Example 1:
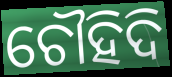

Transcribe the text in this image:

ଚୌହିଦି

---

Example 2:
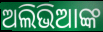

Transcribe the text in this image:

ଅଲିଭିଆଙ୍କ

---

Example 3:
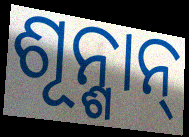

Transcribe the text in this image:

ଶୂନ୍ଶାନ୍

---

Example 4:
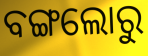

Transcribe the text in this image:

ବଙ୍ଗଲୋରୁ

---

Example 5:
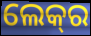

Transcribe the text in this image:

ଲେକ୍‍ର